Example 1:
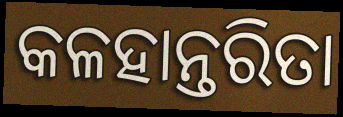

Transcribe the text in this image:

କଳହାନ୍ତରିତା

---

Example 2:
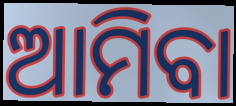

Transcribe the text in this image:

ଆମିବା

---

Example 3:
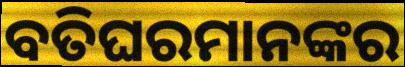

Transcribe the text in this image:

ବତିଘରମାନଙ୍କର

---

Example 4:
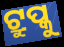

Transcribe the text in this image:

ଟ୍ରୁପ୍କୁ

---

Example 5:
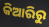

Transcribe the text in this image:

କିଆରିରୁ